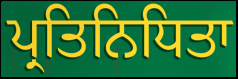
ਪ੍ਰਤਿਨਿਧਿਤਾ